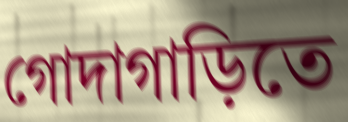
গোদাগাড়িতে